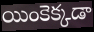
యింకెక్కడా